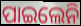
ପାଇଲେନି